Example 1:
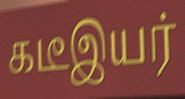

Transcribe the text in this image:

கடீஇயர்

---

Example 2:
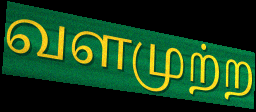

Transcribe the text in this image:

வளமுற்ற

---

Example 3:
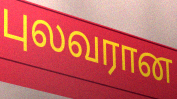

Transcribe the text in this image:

புலவரான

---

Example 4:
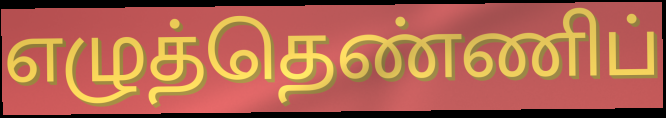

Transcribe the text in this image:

எழுத்தெண்ணிப்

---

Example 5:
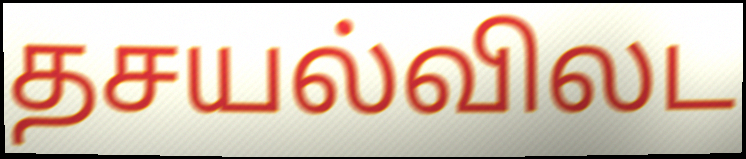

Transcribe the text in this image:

தசயல்விலட